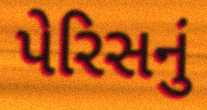
પેરિસનું